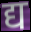
द्य